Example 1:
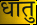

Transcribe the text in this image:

धातु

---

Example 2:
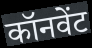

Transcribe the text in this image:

कॉनवेंट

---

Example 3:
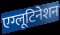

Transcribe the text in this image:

एग्लूटिनेशन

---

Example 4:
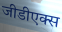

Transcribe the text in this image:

जीडीएक्स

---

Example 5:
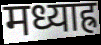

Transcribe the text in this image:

मध्याह्र